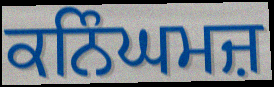
ਕਨਿੰਘਮਜ਼